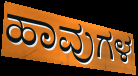
ಹಾವುಗಳ